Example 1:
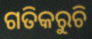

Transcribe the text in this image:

ଗତିକରୁଚି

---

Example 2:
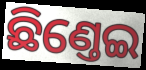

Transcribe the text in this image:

ଛିଣ୍ତେଇ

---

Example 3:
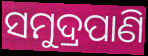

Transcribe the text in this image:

ସମୁଦ୍ରପାଣି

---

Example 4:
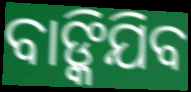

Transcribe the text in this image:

ବାଙ୍କିଯିବ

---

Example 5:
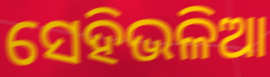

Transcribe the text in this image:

ସେହିଭଳିଆ